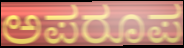
ಅಪರೂಪ